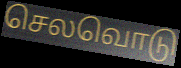
செலவொடு